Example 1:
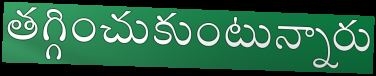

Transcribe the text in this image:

తగ్గించుకుంటున్నారు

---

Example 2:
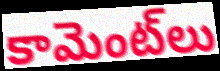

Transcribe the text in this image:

కామెంట్‌లు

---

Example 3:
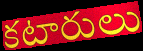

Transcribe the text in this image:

కటారులు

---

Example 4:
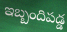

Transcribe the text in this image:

ఇబ్బందిపడ్డ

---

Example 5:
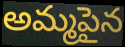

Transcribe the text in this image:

అమ్మపైన